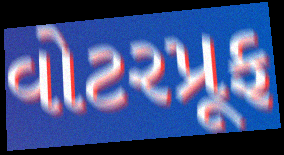
વોટરપ્રૂફ